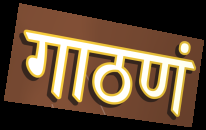
गाठणं